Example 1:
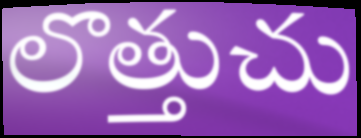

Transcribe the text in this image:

లొత్తుచు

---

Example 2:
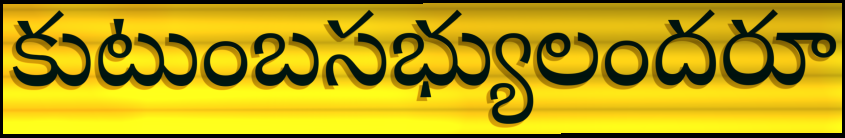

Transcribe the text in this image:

కుటుంబసభ్యులందరూ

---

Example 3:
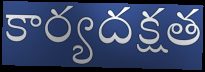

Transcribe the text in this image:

కార్యదక్షత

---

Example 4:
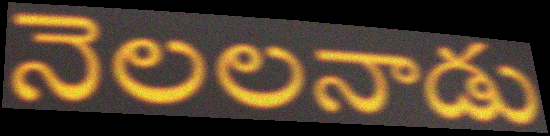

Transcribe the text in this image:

నెలలనాడు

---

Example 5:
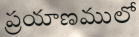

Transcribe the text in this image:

ప్రయాణములో